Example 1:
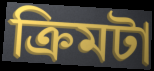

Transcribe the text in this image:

ক্রিমটা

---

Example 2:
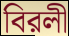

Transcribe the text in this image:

বিরলী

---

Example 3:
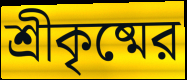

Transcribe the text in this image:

শ্রীকৃষ্মের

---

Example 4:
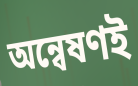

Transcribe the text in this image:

অন্বেষণই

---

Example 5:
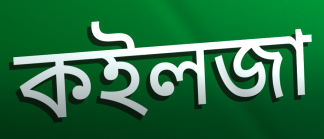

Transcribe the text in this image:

কইলজা